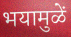
भयामुळें